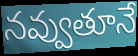
నవ్వుతూనే